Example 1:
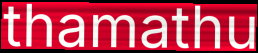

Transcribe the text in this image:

thamathu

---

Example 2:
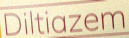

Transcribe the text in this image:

Diltiazem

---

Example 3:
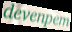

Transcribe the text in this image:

devenpem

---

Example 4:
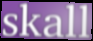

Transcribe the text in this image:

skall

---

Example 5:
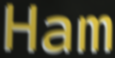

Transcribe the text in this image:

Ham